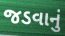
જડવાનું